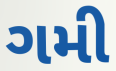
ગમી